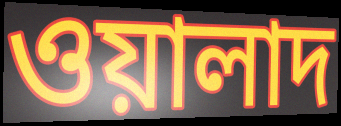
ওয়ালাদ